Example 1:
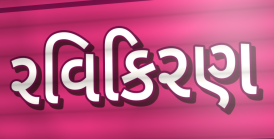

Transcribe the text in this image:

રવિકિરણ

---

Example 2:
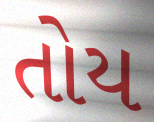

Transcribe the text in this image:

તોય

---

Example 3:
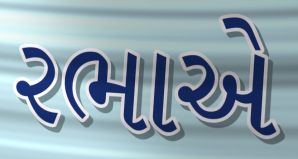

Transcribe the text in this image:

રભાએ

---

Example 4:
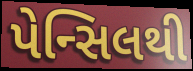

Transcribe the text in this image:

પેન્સિલથી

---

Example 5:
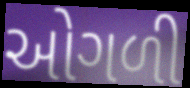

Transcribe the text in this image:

ઓગળી